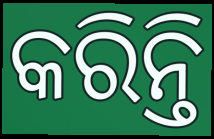
କରିନ୍ତି